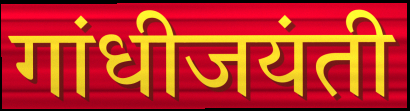
गांधीजयंती